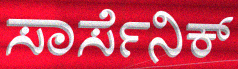
ಸಾರ್ಸೆನಿಕ್